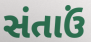
સંતાઉં